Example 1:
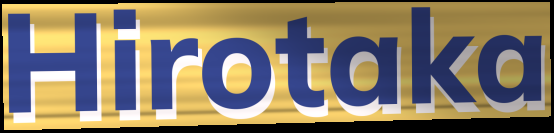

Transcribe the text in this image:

Hirotaka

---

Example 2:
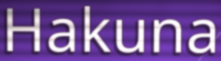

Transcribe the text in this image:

Hakuna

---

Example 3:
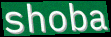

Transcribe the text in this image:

shoba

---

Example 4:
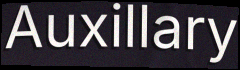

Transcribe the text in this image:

Auxillary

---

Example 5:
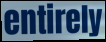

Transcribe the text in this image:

entirely